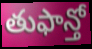
తుఫాన్తో